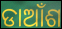
ଡାଆଁଶ